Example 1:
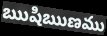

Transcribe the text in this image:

ఋషిఋణము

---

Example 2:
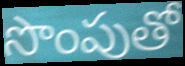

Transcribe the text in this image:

సొంపుతో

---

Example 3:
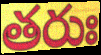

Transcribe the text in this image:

తరుః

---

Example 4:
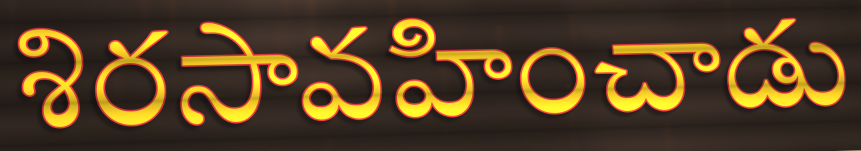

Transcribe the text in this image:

శిరసావహించాడు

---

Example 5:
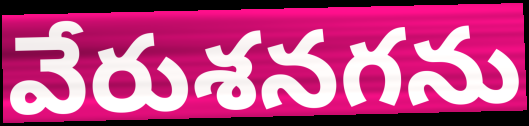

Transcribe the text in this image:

వేరుశనగను